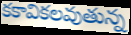
కకావికలవుతున్న